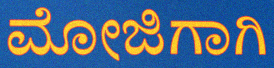
ಮೋಜಿಗಾಗಿ